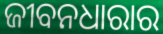
ଜୀବନଧାରାର